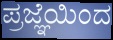
ಪ್ರಜ್ಞೆಯಿಂದ